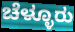
ಚೆಳ್ಳೂರು